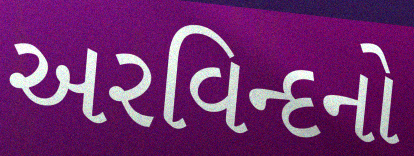
અરવિન્દનો